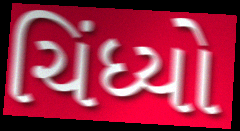
ચિંધ્યો